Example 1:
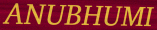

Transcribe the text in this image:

ANUBHUMI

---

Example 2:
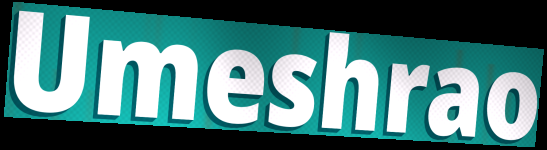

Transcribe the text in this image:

Umeshrao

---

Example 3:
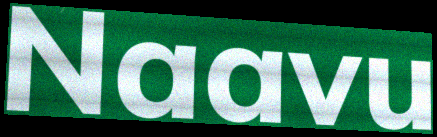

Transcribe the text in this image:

Naavu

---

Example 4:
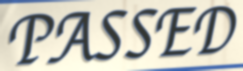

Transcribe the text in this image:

PASSED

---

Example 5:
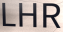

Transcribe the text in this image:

LHR